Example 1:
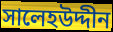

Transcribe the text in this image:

সালেহউদ্দীন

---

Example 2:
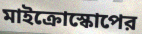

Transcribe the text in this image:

মাইক্রোস্কোপের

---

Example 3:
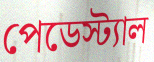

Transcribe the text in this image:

পেডেস্ট্যাল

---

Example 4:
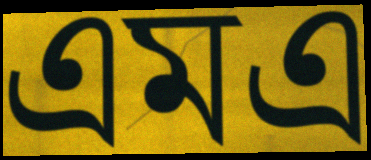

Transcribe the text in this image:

এমএ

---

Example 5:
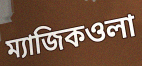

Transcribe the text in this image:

ম্যাজিকওলা